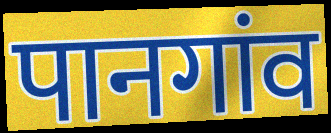
पानगांव